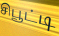
சிபூட்டி